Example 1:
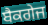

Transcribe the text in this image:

ਬੈਕਗੇਜ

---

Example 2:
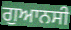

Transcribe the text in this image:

ਗੁਆਨਸੀ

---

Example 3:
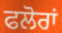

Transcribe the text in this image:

ਫਲੋਰਾਂ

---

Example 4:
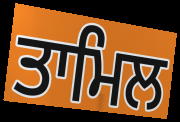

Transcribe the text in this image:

ਤਾਮਿਲ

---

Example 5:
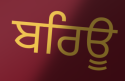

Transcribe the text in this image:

ਬਰਿਊ